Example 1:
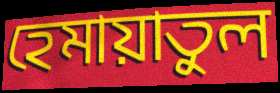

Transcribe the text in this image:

হেমায়াতুল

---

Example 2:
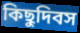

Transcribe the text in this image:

কিছুদিবস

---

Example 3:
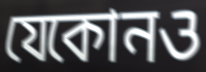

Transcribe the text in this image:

যেকোনও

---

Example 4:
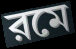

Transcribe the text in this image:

রমে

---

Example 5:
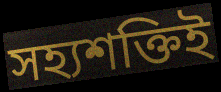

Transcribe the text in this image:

সহ্যশক্তিই